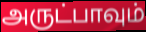
அருட்பாவும்